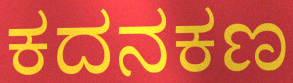
ಕದನಕಣ